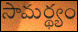
సామర్థ్యం